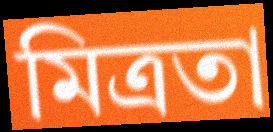
মিত্ৰতা